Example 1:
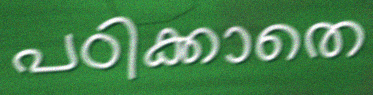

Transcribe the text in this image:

പഠിക്കാതെ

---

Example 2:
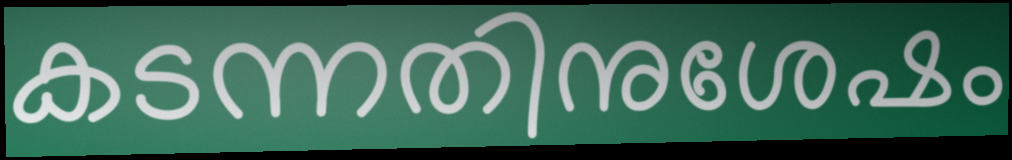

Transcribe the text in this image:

കടന്നതിനുശേഷം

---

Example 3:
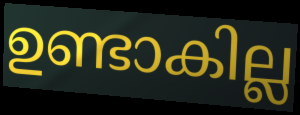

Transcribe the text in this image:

ഉണ്ടാകില്ല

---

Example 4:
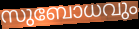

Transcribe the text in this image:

സുബോധവും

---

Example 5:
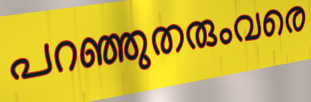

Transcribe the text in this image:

പറഞ്ഞുതരുംവരെ